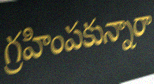
గ్రహింపకున్నారా